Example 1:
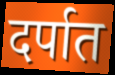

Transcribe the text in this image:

दर्पात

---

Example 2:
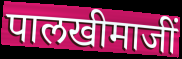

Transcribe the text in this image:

पालखीमाजीं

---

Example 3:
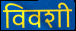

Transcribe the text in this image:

विवशी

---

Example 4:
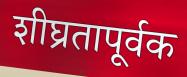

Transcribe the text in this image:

शीघ्रतापूर्वक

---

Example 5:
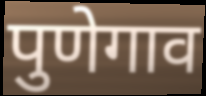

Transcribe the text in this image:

पुणेगाव